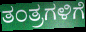
ತಂತ್ರಗಳಿಗೆ